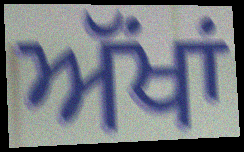
ਅੱਂਖਾਂ